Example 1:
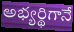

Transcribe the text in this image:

అభ్యర్థిగానే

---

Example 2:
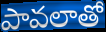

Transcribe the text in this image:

పావలాతో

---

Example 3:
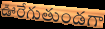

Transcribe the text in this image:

ఊరేగుతుండగా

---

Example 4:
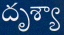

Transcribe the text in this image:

దృశ్యా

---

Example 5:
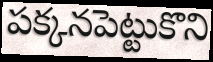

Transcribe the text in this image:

పక్కనపెట్టుకొని